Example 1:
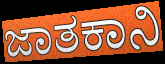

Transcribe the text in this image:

ಜಾತಕಾನಿ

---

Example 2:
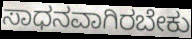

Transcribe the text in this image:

ಸಾಧನವಾಗಿರಬೇಕು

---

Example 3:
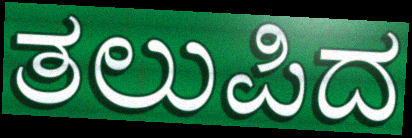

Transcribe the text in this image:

ತಲುಪಿದ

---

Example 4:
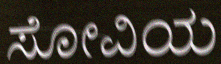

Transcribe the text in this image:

ಸೋವಿಯ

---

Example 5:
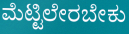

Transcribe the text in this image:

ಮೆಟ್ಟಿಲೇರಬೇಕು